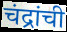
चंद्रांची